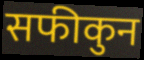
सफीकुन